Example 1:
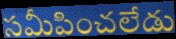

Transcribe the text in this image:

సమీపించలేడు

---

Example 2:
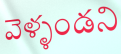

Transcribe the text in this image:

వెళ్ళండని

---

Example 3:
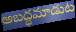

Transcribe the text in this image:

అబద్ధమాడుట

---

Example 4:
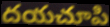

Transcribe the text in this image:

దయచూపి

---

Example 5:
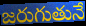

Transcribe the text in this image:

జరుగుతునే